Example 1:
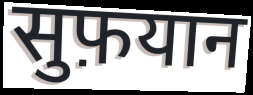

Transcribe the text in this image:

सुफ़यान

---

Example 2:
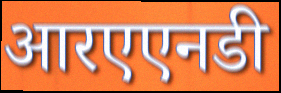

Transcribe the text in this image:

आरएएनडी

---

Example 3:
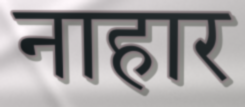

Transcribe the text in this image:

नाहार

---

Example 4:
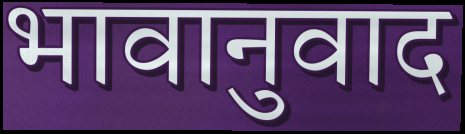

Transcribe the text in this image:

भावानुवाद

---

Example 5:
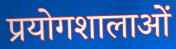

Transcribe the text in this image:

प्रयोगशालाओं